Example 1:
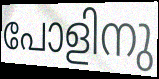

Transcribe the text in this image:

പോളിനു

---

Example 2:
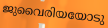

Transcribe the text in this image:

ജുവൈരിയയോടു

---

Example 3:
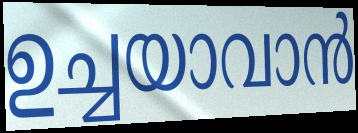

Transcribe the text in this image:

ഉച്ചയാവാൻ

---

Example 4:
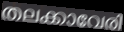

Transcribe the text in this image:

തലക്കാവേരി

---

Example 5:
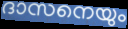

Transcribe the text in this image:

ദാസനെയും